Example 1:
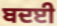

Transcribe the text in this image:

ਬਦਈ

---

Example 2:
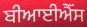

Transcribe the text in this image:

ਬੀਆਈਐੱਸ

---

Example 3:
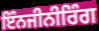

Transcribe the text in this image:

ਇੰਨਜੀਨੀਰਿੰਗ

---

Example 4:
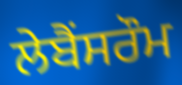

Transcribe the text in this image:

ਲੇਬੈਂਸਰੌਮ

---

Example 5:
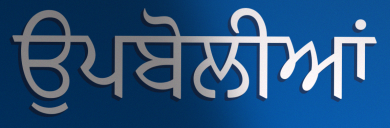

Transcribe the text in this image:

ਉਪਬੋਲੀਆਂ